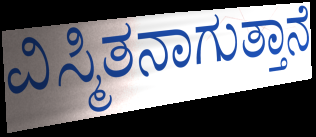
ವಿಸ್ಮಿತನಾಗುತ್ತಾನೆ